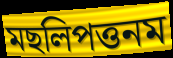
মছলিপত্তনম